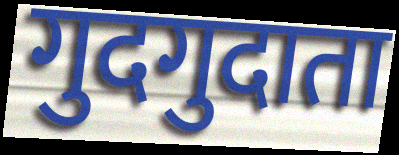
गुदगुदाता